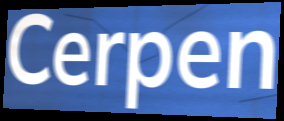
Cerpen